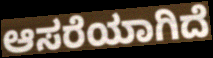
ಆಸರೆಯಾಗಿದೆ